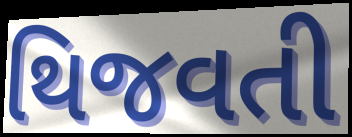
થિજવતી